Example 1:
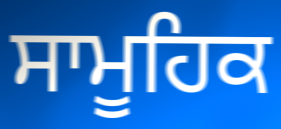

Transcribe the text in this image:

ਸਾਮੂਹਿਕ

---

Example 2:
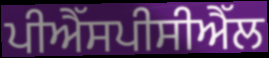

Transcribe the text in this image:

ਪੀਐੱਸਪੀਸੀਐੱਲ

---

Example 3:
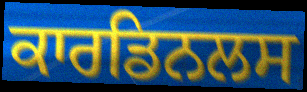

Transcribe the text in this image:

ਕਾਰਡਿਨਲਸ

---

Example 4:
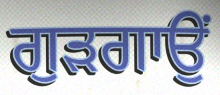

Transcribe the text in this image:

ਗੁੜਗਾਉਂ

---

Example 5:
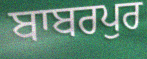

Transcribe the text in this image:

ਬਾਬਰਪੁਰ